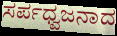
ಸರ್ಪಧ್ವಜನಾದ